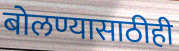
बोलण्यासाठीही